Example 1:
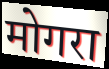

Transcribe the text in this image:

मोगरा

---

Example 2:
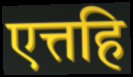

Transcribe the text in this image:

एत्तहि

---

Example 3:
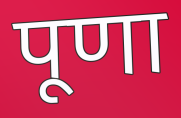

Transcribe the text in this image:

पूणा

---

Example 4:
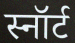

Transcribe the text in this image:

स्नॉर्ट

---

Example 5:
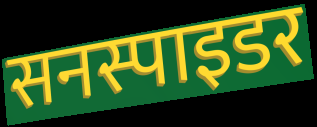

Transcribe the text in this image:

सनस्पाइडर